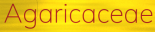
Agaricaceae